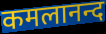
कमलानन्द